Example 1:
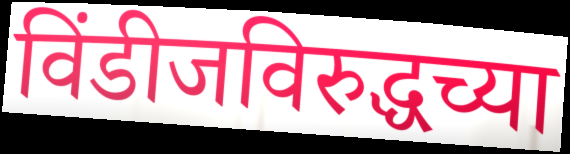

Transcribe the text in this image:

विंडीजविरुद्धच्या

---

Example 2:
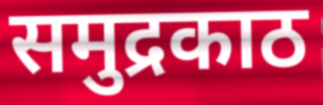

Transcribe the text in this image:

समुद्रकाठ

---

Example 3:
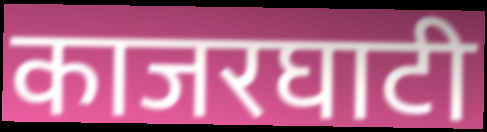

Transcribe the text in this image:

काजरघाटी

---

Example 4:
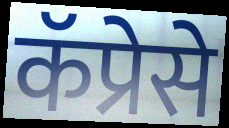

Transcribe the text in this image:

कॅप्रेसे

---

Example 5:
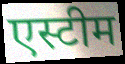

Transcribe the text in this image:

एस्टीम